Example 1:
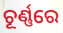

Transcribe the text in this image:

ଚୂର୍ଣ୍ଣରେ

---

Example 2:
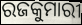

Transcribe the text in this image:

ରଜକୁମାରୀ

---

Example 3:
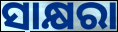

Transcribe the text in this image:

ସାକ୍ଷରା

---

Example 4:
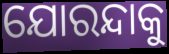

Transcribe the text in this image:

ଯୋରନ୍ଦାକୁ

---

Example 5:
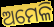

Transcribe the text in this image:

ଅମେଳି